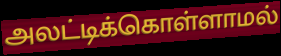
அலட்டிக்கொள்ளாமல்